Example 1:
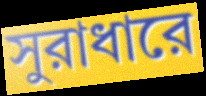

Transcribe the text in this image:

সুরাধারে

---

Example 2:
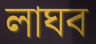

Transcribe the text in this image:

লাঘব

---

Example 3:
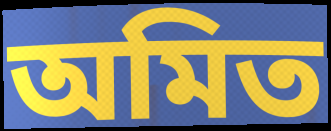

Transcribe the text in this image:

অমিত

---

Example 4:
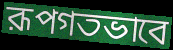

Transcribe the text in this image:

রূপগতভাবে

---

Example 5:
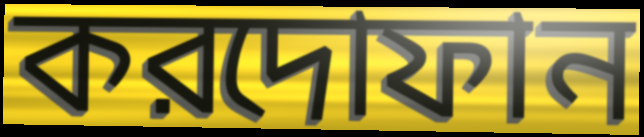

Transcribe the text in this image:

করদোফান